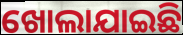
ଖୋଲାଯାଇଛି